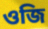
ওজি